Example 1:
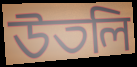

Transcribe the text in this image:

উতলি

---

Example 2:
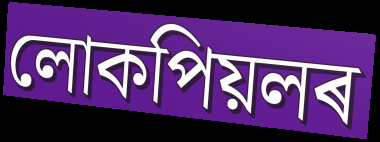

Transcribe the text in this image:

লোকপিয়লৰ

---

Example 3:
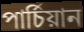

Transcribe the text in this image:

পাৰ্চিয়ান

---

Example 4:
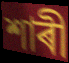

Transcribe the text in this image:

শাৰী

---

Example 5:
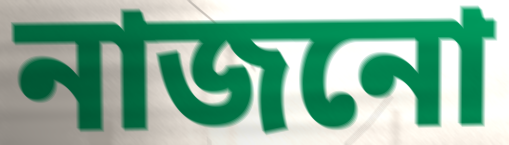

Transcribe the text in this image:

নাজনো